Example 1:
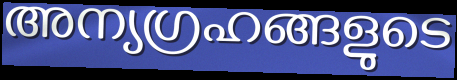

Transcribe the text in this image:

അന്യഗ്രഹങ്ങളുടെ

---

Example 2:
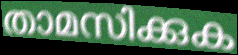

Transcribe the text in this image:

താമസിക്കുക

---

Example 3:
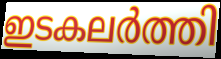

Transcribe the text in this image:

ഇടകലർത്തി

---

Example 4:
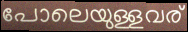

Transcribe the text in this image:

പോലെയുള്ളവര്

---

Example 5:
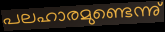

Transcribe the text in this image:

പലഹാരമുണ്ടെന്നു്